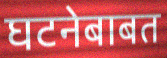
घटनेबाबत